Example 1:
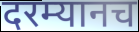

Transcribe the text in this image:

दरम्यानच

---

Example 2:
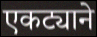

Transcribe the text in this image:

एकट्याने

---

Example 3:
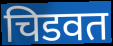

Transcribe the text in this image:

चिडवत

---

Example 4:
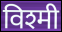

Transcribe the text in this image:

विश्मी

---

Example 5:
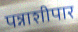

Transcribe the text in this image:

पन्नाशीपार